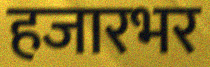
हजारभर